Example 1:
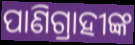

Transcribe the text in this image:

ପାଣିଗ୍ରାହୀଙ୍କ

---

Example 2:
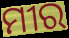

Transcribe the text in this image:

ମୀର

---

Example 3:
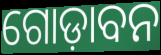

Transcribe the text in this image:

ଗୋଡ଼ାବନ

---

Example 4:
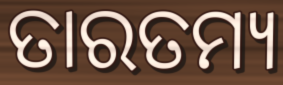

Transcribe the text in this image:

ତାରତମ୍ୟ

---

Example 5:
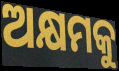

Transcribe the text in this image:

ଅକ୍ଷମକୁ